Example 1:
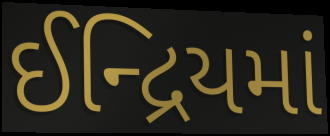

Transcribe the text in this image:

ઈન્દ્રિયમાં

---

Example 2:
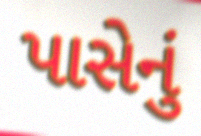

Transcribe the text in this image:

પાસેનું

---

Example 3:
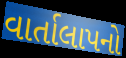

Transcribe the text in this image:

વાર્તાલાપનો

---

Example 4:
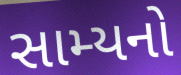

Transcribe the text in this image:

સામ્યનો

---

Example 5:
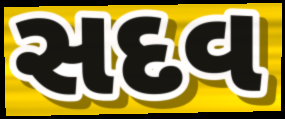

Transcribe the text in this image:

સદવ